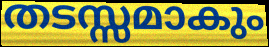
തടസ്സമാകും